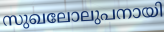
സുഖലോലുപനായി